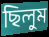
ছিলুম